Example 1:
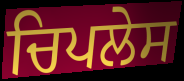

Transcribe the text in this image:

ਚਿਪਲੇਸ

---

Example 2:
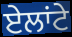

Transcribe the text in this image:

ਏਲਾਂਟੇ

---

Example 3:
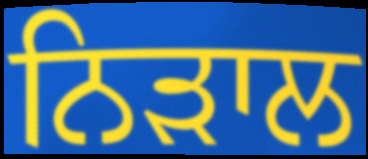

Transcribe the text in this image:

ਨਿੜਾਲ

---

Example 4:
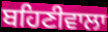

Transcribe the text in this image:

ਬਹਿਣੀਵਾਲਾ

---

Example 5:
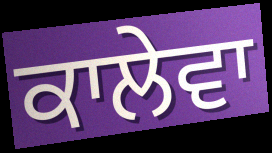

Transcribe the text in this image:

ਕਾਲੇਵਾ